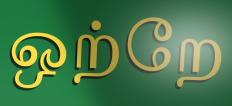
ஒற்றே